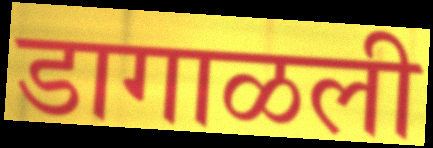
डागाळली